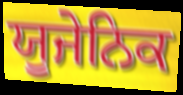
ਯੂਜੇਨਿਕ